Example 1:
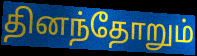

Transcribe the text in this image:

தினந்தோறும்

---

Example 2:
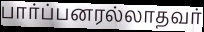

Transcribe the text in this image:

பார்ப்பனரல்லாதவர்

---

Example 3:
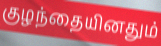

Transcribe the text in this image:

குழந்தையினதும்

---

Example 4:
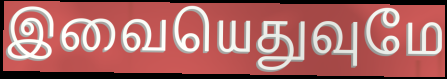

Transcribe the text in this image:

இவையெதுவுமே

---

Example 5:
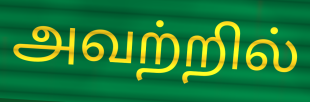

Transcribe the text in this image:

அவற்றில்